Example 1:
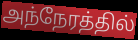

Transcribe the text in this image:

அந்நேரத்தில்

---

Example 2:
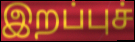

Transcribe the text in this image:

இறப்புச்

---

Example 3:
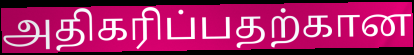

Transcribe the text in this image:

அதிகரிப்பதற்கான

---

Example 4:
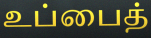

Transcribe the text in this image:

உப்பைத்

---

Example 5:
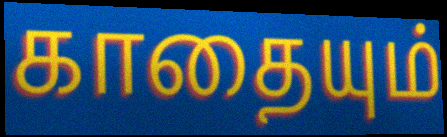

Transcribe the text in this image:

காதையும்